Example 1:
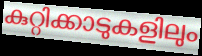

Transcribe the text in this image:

കുറ്റിക്കാടുകളിലും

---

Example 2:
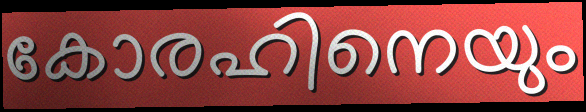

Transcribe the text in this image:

കോരഹിനെയും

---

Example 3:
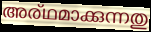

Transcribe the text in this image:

അര്ഥമാക്കുന്നതു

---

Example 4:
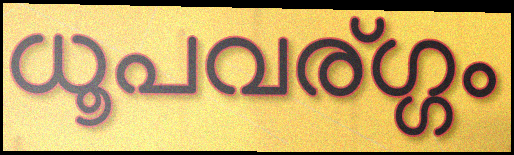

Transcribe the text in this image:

ധൂപവര്ഗ്ഗം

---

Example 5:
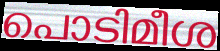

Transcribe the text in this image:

പൊടിമീശ